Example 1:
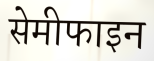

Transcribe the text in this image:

सेमीफाइन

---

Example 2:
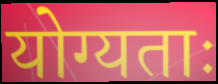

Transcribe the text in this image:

योग्यताः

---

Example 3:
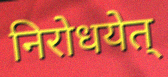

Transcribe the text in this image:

निरोधयेत्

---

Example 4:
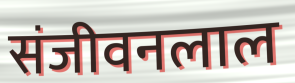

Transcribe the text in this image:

संजीवनलाल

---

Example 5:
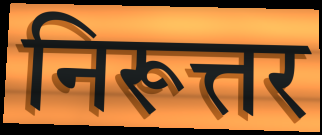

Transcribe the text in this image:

निरूत्तर